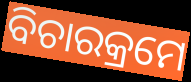
ବିଚାରକ୍ରମେ